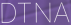
DTNA